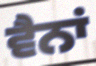
ਵੈਨਾਂ